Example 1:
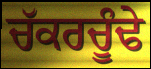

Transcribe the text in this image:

ਚੱਕਰਚੂੰਢੇ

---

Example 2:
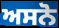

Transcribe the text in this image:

ਅਸਨੋ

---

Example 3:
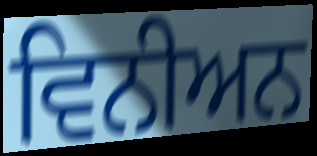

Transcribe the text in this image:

ਵਿਨੀਅਨ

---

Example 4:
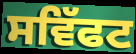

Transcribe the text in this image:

ਸਵਿੱਫਟ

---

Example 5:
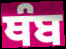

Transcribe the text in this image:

ਥੰਬ